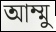
আম্মু